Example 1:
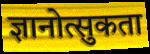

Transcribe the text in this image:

ज्ञानोत्सुकता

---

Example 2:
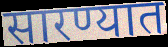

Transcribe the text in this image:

सारण्यात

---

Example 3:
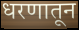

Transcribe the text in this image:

धरणातून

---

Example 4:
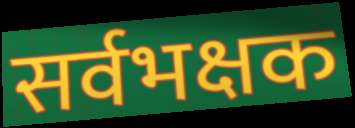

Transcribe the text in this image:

सर्वभक्षक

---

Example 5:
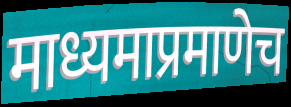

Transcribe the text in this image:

माध्यमाप्रमाणेच